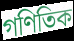
গণিতিক